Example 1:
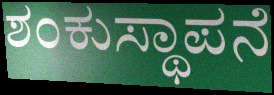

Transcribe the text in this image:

ಶಂಕುಸ್ಥಾಪನೆ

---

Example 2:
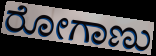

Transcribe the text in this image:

ರೋಗಾಣು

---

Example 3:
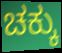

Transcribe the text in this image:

ಚಕ್ಕು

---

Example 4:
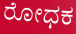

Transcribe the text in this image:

ರೋಧಕ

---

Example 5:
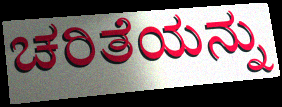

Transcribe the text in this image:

ಚರಿತೆಯನ್ನು